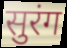
सुरंग